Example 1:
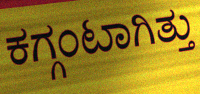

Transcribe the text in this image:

ಕಗ್ಗಂಟಾಗಿತ್ತು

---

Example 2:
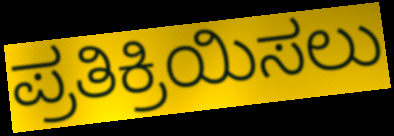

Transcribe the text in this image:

ಪ್ರತಿಕ್ರಿಯಿಸಲು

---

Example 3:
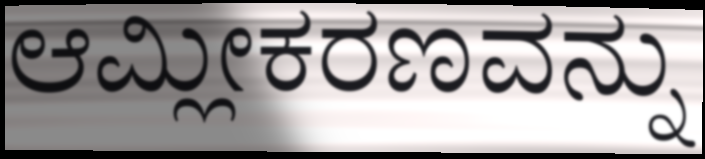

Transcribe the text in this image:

ಆಮ್ಲೀಕರಣವನ್ನು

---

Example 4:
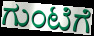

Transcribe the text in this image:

ಗುಂಟೆಗೆ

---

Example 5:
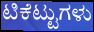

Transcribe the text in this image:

ಟಿಕೆಟ್ಟುಗಳು